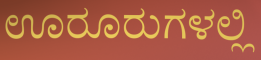
ಊರೂರುಗಳಲ್ಲಿ